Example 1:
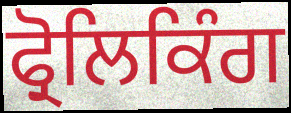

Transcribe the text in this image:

ਫ੍ਰੋਲਿਕਿੰਗ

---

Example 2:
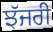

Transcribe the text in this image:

ਝੱਜਰੀ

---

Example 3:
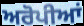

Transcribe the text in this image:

ਅਰੋਪੀਆਂ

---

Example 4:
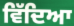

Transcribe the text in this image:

ਵਿੱਦਿਆ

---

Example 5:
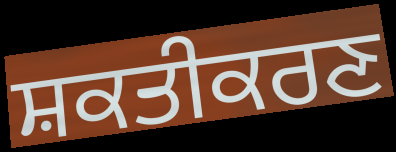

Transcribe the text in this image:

ਸ਼ਕਤੀਕਰਣ